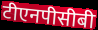
टीएनपीसीबी